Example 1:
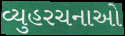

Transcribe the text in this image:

વ્યુહરચનાઓ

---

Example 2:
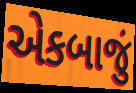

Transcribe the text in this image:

એકબાજું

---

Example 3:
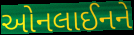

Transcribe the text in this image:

ઓનલાઈનને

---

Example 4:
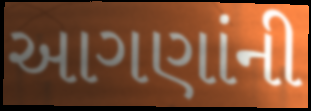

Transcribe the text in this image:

આગણાંની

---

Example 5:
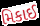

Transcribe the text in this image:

મિકાઈ